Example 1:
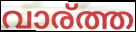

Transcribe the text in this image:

വാര്ത്ത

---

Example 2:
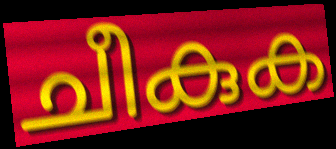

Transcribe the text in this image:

ചീകുക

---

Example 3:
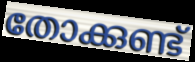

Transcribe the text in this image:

തോക്കുണ്ട്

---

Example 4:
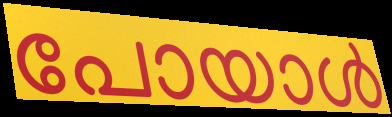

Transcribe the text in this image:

പോയാൾ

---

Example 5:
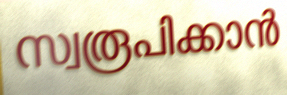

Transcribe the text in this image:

സ്വരൂപിക്കാൻ